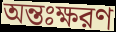
অন্তঃক্ষরণ